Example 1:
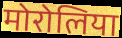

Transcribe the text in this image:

मोरोलिया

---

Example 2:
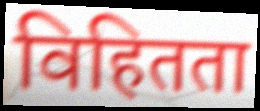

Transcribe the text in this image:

विहितता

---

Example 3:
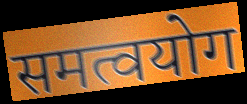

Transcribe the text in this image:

समत्वयोग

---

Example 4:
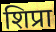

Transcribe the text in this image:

शिप्रा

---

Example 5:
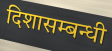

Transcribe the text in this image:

दिशासम्बन्धी